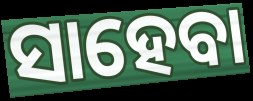
ସାହେବା